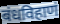
बंधविहाणं